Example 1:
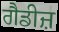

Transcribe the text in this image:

ਗੈਡੀਜ਼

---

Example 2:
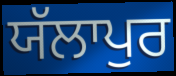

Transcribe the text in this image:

ਯੱਲਾਪੁਰ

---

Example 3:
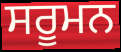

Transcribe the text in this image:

ਸਰੂਮਨ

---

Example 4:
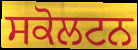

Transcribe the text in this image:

ਸਕੋਲਟਨ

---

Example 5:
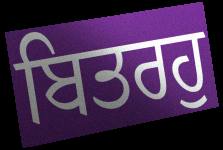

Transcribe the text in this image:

ਬਿਤਰਹੁ